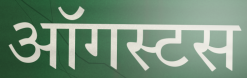
ऑगस्टस